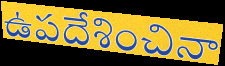
ఉపదేశించినా